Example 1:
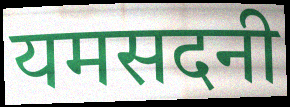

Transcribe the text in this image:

यमसदनी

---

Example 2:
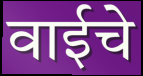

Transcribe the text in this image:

वाईचे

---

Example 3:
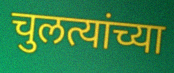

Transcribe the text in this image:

चुलत्यांच्या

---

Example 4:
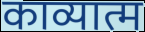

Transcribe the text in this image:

काव्यात्म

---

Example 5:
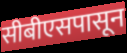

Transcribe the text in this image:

सीबीएसपासून